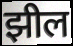
झील